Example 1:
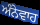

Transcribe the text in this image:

ਅੰਨੇਵਾਹ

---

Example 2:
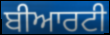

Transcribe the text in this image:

ਬੀਆਰਟੀ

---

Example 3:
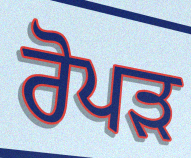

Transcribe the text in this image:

ਰੋਪਡ਼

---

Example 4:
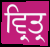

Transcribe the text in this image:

ਵ੍ਰਿਤ੍ਰ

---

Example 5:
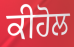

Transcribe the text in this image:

ਕੀਹੋਲ